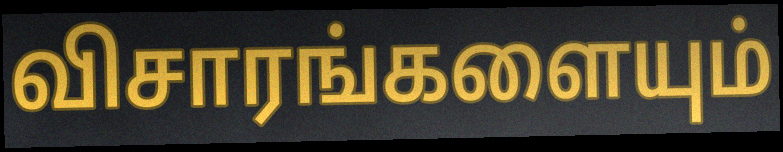
விசாரங்களையும்